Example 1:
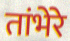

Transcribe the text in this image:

तांभेरे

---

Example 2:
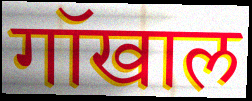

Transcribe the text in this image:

गॉखाल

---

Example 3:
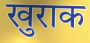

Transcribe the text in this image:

खुराक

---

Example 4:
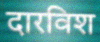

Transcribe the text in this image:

दारविश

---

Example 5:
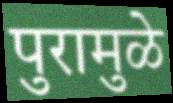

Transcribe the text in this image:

पुरामुळे